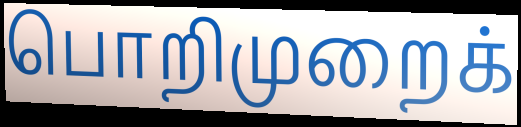
பொறிமுறைக்